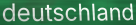
deutschland